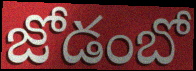
జోడంబో